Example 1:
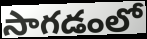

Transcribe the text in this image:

సాగడంలో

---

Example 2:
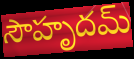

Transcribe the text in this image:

సౌహృదమ్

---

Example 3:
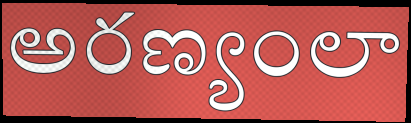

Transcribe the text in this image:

అరణ్యంలా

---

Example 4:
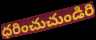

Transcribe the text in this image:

ధరించుచుండిరి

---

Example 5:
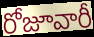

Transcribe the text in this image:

రోజూవారీ